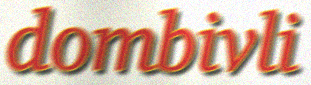
dombivli